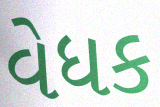
વેધક